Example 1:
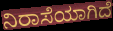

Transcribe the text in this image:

ನಿರಾಸೆಯಾಗಿದೆ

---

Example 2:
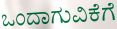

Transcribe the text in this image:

ಒಂದಾಗುವಿಕೆಗೆ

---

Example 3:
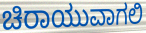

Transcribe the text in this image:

ಚಿರಾಯುವಾಗಲಿ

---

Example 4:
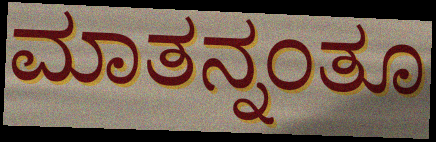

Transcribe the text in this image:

ಮಾತನ್ನಂತೂ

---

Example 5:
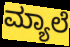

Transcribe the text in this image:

ಮ್ಯಾಲೆ